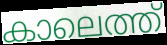
കാലെത്ത്